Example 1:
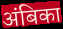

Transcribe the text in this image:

अंबिका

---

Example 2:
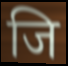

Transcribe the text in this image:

जि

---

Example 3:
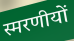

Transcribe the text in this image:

स्मरणीयों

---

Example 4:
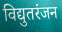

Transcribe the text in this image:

विद्युतरंजन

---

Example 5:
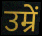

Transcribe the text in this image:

उम्रें